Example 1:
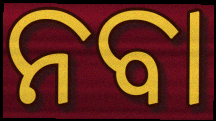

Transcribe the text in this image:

ନବା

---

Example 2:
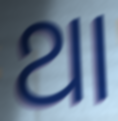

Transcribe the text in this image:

ଥା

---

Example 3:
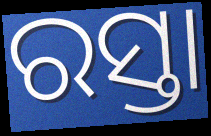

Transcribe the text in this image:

ରସ୍ତା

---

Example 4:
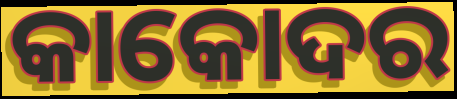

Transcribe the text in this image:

କାକୋଦର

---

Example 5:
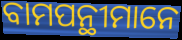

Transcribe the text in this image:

ବାମପନ୍ଥୀମାନେ